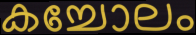
കച്ചോലം